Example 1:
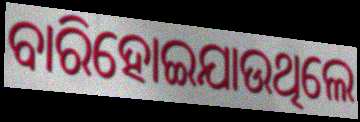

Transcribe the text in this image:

ବାରିହୋଇଯାଉଥିଲେ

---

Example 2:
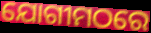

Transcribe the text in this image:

ଯୋଗୀମଠରେ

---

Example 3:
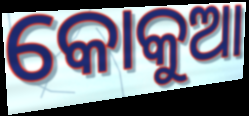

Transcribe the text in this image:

କୋକୁଆ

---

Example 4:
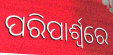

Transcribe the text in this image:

ପରିପାର୍ଶ୍ୱରେ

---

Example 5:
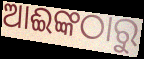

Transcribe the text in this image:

ଆଈଙ୍କଠାରୁ